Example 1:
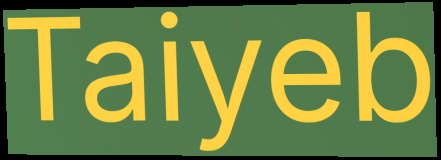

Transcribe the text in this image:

Taiyeb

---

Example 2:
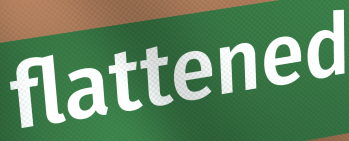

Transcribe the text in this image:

flattened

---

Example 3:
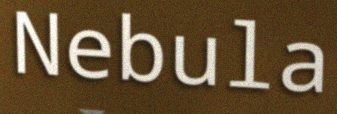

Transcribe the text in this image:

Nebula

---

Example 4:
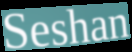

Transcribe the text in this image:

Seshan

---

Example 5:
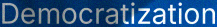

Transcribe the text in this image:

Democratization